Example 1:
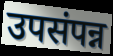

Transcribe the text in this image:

उपसंपन्न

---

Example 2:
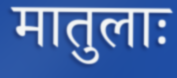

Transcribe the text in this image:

मातुलाः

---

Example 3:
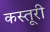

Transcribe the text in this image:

कस्तूरी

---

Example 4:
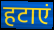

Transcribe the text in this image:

हटाएं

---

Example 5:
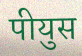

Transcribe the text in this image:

पीयुस